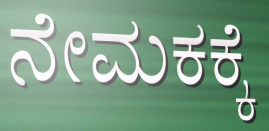
ನೇಮಕಕ್ಕೆ